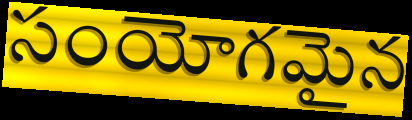
సంయోగమైన